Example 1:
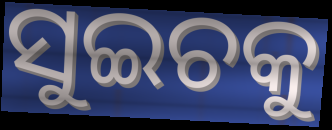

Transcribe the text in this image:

ସୁଇଚକୁ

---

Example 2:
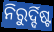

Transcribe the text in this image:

ନିରୁର୍ଦ୍ଦିଷ୍ଟ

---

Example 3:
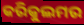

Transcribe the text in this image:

କରିକୁଲମର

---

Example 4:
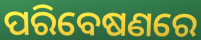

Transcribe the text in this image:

ପରିବେଷଣରେ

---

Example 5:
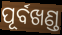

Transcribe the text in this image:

ପୂର୍ବଖଣ୍ଡ